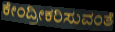
ಕೇಂದ್ರೀಕರಿಸುವಂತೆ